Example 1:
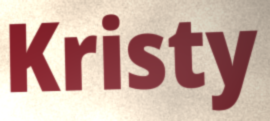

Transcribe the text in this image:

Kristy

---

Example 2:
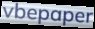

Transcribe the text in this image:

vbepaper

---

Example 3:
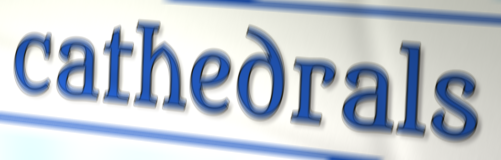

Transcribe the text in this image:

cathedrals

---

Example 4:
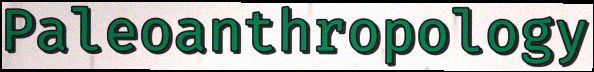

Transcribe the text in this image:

Paleoanthropology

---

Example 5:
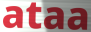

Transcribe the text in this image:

ataa